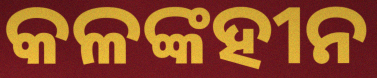
କଳଙ୍କହୀନ